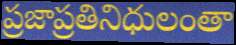
ప్రజాప్రతినిధులంతా